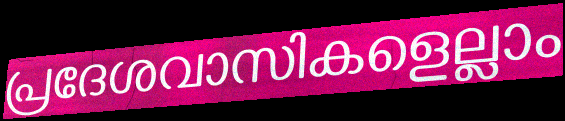
പ്രദേശവാസികളെല്ലാം